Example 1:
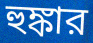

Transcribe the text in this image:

হুঙ্কার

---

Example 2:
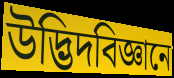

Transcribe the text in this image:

উদ্ভিদবিজ্ঞানে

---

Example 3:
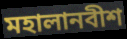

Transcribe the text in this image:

মহালানবীশ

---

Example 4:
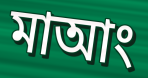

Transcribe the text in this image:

মাআং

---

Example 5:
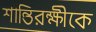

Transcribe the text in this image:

শান্তিরক্ষীকে